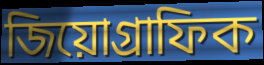
জিয়োগ্রাফিক